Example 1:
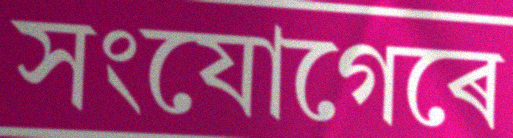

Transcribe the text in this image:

সংযোগেৰে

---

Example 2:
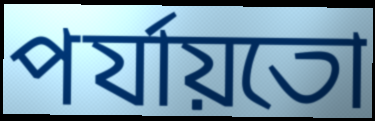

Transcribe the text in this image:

পৰ্যায়তো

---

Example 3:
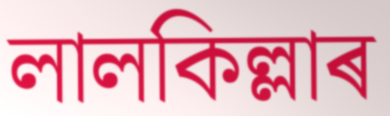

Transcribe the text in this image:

লালকিল্লাৰ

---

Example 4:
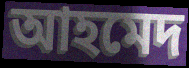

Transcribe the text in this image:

আহমেদ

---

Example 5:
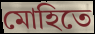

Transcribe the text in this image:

মোহিতে